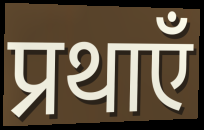
प्रथाएँ